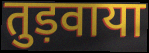
तुड़वाया